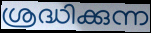
ശ്രദ്ധിക്കുന്ന